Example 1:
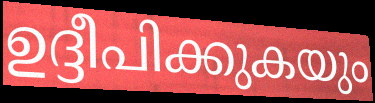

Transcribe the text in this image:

ഉദ്ദീപിക്കുകയും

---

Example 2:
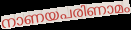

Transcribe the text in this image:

നാണയപരിണാമം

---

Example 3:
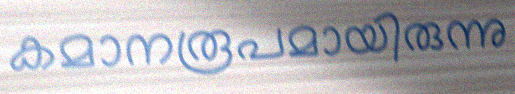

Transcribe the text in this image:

കമാനരൂപമായിരുന്നു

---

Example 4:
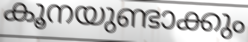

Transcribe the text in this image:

കൂനയുണ്ടാക്കും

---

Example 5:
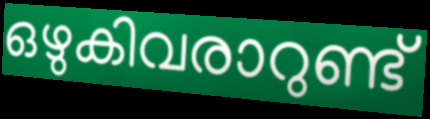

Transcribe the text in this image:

ഒഴുകിവരാറുണ്ട്